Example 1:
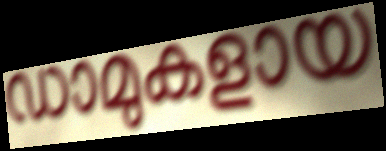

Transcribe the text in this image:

ഡാമുകളായ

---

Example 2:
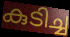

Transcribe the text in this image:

കുടിച്ച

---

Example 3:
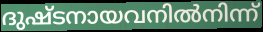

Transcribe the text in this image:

ദുഷ്ടനായവനിൽനിന്ന്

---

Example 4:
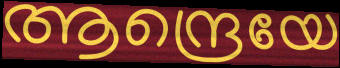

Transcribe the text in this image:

ആന്ദ്രെയേ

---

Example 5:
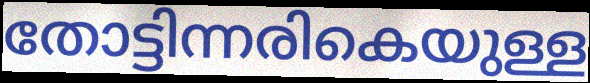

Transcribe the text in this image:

തോട്ടിന്നരികെയുള്ള